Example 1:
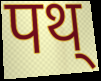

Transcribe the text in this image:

पथ्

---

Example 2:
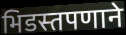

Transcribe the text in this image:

भिडस्तपणाने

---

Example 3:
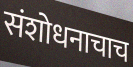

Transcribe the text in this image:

संशोधनाचाच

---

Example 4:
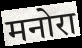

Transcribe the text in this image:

मनोरा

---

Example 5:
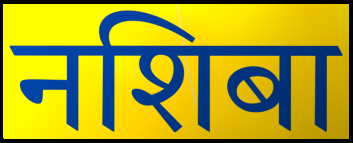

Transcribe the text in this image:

नशिबा